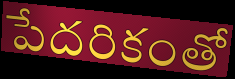
పేదరికంతో